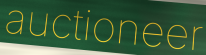
auctioneer